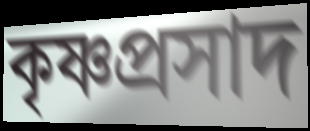
কৃষ্ণপ্রসাদ